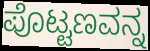
ಪೊಟ್ಟಣವನ್ನ